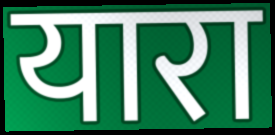
यारा